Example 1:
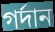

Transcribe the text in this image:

গর্দান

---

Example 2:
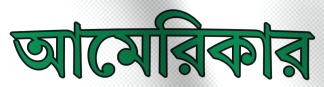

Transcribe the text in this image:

আমেরিকার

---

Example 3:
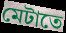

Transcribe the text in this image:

মেটাতে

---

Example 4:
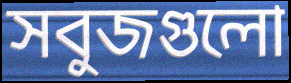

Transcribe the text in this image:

সবুজগুলো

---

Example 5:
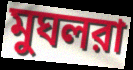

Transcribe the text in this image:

মুঘলরা